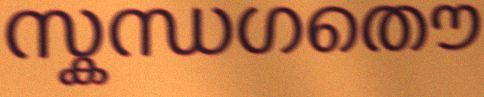
സ്കന്ധഗതൌ